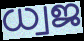
ധ്വജ